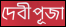
দেবীপূজা